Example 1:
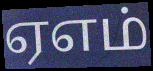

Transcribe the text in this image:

ஏஎம்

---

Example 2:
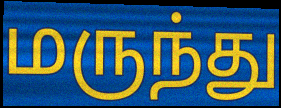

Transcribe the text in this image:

மருந்து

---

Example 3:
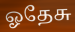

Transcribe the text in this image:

ஓதேசு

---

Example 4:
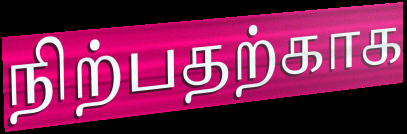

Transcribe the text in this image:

நிற்பதற்காக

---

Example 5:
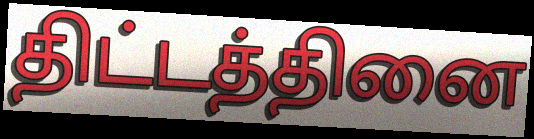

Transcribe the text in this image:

திட்டத்தினை